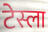
टेस्ला